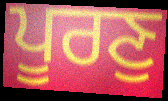
ਪੂਰਣੁ